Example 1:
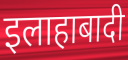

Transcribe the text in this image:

इलाहाबादी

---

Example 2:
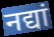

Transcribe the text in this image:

नद्यां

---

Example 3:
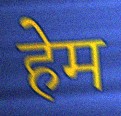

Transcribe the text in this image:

हेम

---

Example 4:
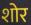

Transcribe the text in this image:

शोर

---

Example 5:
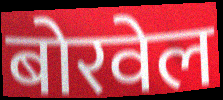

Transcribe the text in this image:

बोरवेल